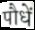
पौधें